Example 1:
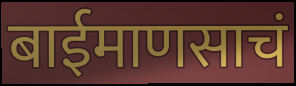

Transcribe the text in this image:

बाईमाणसाचं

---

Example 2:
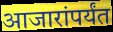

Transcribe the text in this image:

आजारांपर्यंत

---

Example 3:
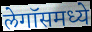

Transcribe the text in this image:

लेगॉसमध्ये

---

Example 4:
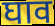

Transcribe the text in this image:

घाव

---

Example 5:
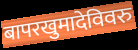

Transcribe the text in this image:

बापरखुमादेविवरु